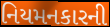
નિયમનકારની